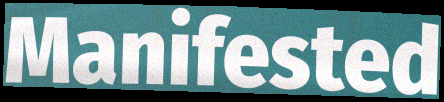
Manifested